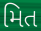
મિત